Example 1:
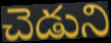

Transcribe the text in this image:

చెడుని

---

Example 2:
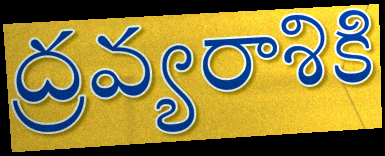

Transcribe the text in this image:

ద్రవ్యరాశికి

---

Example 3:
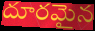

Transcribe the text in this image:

దూరమైన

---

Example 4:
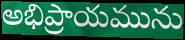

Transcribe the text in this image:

అభిప్రాయమును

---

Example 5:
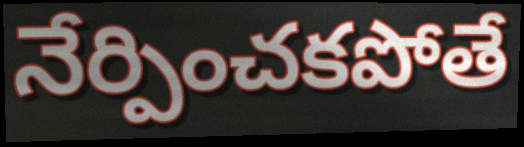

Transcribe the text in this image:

నేర్పించకపోతే